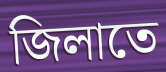
জিলাতে